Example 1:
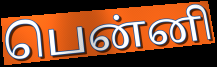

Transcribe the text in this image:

பென்னி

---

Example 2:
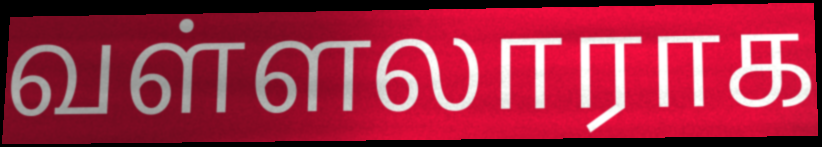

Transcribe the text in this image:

வள்ளலாராக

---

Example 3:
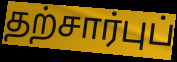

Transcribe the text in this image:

தற்சார்புப்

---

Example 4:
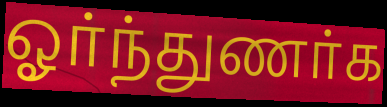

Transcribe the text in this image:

ஓர்ந்துணர்க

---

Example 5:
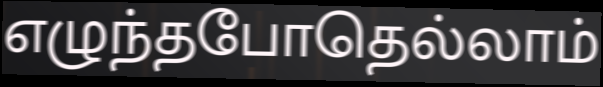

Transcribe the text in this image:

எழுந்தபோதெல்லாம்